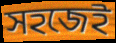
সহজেই